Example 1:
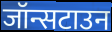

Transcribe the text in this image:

जॉन्सटाउन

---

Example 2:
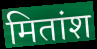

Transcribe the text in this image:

मितांश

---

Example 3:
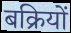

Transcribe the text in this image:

बक्रियों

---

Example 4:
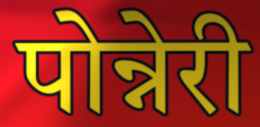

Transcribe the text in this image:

पोन्नेरी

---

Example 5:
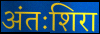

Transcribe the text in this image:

अंतःशिरा